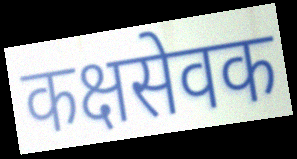
कक्षसेवक